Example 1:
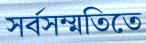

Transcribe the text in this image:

সর্বসম্মতিতে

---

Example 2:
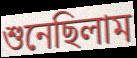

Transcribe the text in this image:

শুনেছিলাম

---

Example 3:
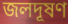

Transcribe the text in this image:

জলদূষণ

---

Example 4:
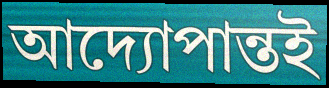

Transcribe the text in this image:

আদ্যোপান্তই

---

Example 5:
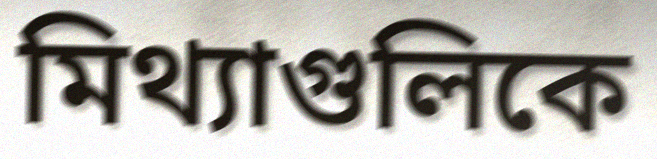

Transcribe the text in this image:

মিথ্যাগুলিকে